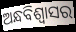
ଅନ୍ଧବିଶ୍ୱାସର